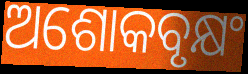
ଅଶୋକବୃକ୍ଷଂ